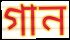
গান